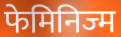
फेमिनिज्‍म